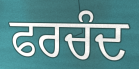
ਫਰਚੰਦ